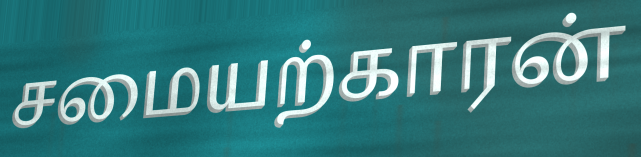
சமையற்காரன்